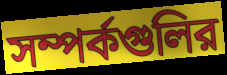
সম্পর্কগুলির